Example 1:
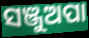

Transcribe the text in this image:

ସଞ୍ଜୁଅପା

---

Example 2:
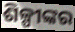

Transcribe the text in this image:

ଶିଳ୍ପୀଙ୍କର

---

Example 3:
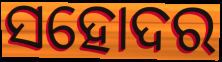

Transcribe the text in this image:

ସହୋଦର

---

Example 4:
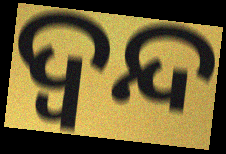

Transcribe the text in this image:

ଦ୍ଵନ୍ଦ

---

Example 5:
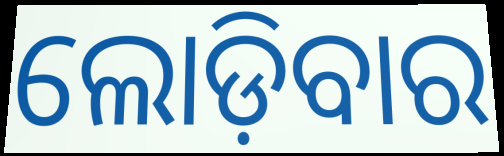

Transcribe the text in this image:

ଲୋଡ଼ିବାର